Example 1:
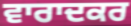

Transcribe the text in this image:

ਵਾਰਾਦਕਰ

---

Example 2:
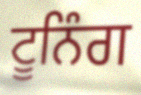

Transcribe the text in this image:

ਟੂਨਿੰਗ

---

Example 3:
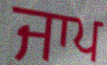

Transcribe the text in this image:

ਜਾਪ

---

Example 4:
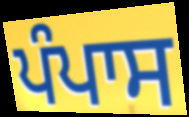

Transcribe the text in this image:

ਪੰਪਾਸ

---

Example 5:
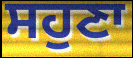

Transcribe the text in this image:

ਸਹੁਣਾ